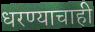
धरण्याचाही